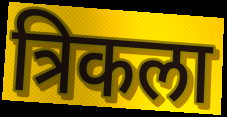
त्रिकला